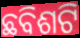
ଛବିଶଟି